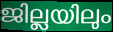
ജില്ലയിലും